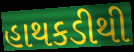
હાથકડીથી